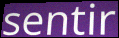
sentir